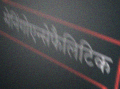
मेनिंगोएन्सेफैलिटिक